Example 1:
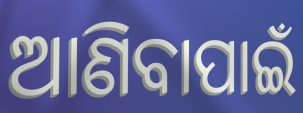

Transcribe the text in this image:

ଆଣିବାପାଇଁ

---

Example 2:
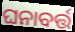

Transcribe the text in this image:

ଘନାବର୍ତ୍ତ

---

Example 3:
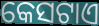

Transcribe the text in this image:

କେସଟାଏ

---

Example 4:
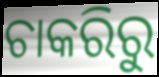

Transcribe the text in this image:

ଚାକରିରୁ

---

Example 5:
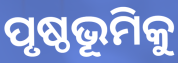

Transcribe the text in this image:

ପୃଷ୍ଠଭୂମିକୁ